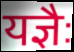
यज्ञैः